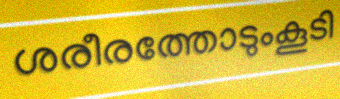
ശരീരത്തോടുംകൂടി